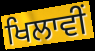
ਖਿਲਾਵੀਂ